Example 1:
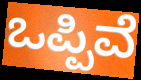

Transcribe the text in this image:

ಒಪ್ಪಿವೆ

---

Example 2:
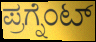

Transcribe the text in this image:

ಪ್ರಗ್ನೆಂಟ್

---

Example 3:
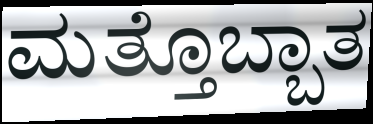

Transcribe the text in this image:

ಮತ್ತೊಬ್ಬಾತ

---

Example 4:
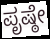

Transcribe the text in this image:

ಪೃಷ್ಠೇ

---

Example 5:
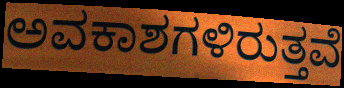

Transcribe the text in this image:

ಅವಕಾಶಗಳಿರುತ್ತವೆ